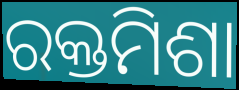
ରକ୍ତମିଶା